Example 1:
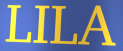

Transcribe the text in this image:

LILA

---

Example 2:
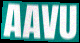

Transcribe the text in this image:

AAVU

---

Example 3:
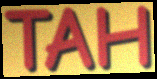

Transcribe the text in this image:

TAH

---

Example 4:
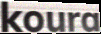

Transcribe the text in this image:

koura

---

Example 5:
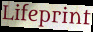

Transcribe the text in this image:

Lifeprint